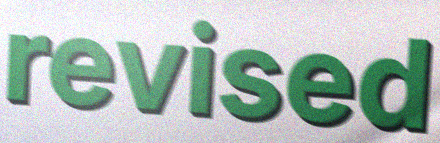
revised